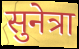
सुनेत्रा